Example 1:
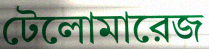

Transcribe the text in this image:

টেলোমারেজ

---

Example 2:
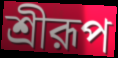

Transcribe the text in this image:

শ্রীরূপ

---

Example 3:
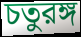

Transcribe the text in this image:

চতুরঙ্গ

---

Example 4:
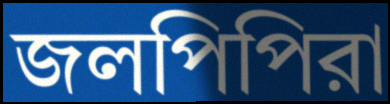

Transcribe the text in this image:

জলপিপিরা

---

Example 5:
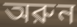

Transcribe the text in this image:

অরুন